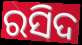
ରସିଦ